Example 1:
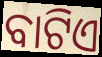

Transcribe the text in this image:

ବାଟିଏ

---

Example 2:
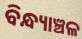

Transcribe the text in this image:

ବିନ୍ଧ୍ୟାଞ୍ଚଳ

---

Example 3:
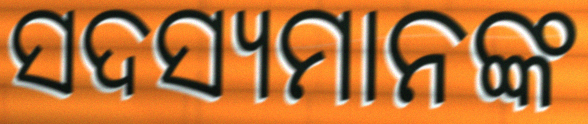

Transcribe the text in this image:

ସଦସ୍ୟମାନଙ୍କ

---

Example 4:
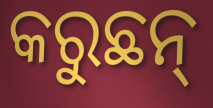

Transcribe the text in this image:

କରୁଛନ୍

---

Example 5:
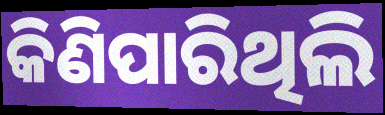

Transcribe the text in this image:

କିଣିପାରିଥିଲି